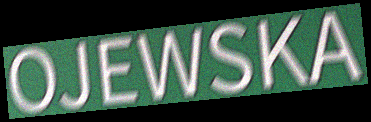
OJEWSKA